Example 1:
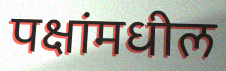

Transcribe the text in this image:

पक्षांमधील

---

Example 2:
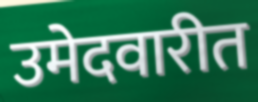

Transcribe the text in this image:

उमेदवारीत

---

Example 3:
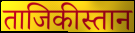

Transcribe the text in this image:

ताजिकीस्तान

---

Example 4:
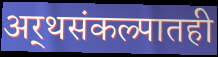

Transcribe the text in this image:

अर्थसंकल्पातही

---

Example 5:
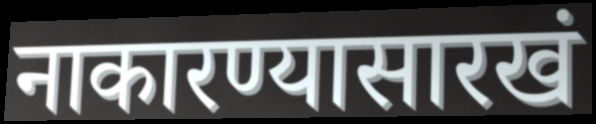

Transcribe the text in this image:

नाकारण्यासारखं